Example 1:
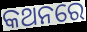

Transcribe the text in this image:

କଥନରେ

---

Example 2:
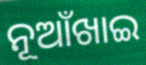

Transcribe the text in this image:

ନୂଆଁଖାଇ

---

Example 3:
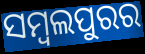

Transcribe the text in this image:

ସମ୍ୱଲପୁରର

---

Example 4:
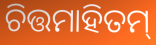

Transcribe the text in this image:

ଚିତ୍ତମାହିତମ୍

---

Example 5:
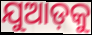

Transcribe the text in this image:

ଯୁଆଡ଼କୁ